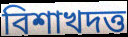
বিশাখদত্ত